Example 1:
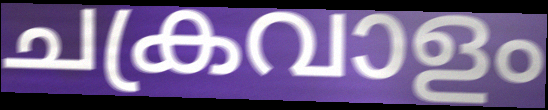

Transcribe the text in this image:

ചക്രവാളം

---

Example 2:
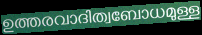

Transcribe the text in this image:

ഉത്തരവാദിത്വബോധമുള്ള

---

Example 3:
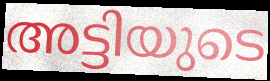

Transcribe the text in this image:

അട്ടിയുടെ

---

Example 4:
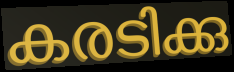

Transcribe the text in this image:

കരടിക്കു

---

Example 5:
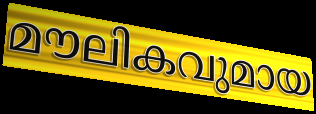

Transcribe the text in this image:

മൗലികവുമായ